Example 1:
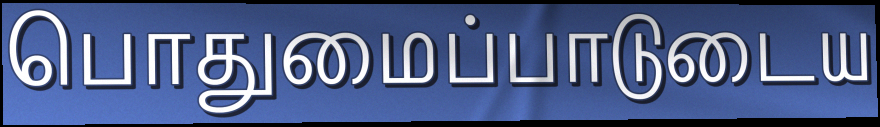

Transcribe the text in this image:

பொதுமைப்பாடுடைய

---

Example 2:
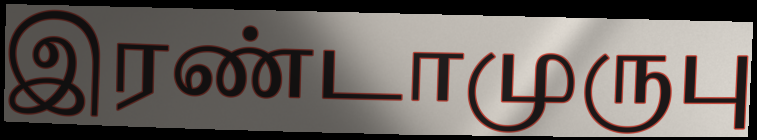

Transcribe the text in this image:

இரண்டாமுருபு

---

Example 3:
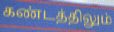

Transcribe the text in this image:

கண்டத்திலும்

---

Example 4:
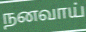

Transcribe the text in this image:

நனவாய்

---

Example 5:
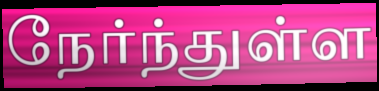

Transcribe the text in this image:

நேர்ந்துள்ள